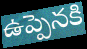
ఉప్పెనకి